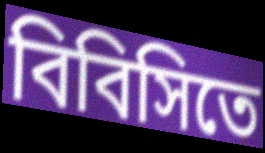
বিবিসিতে